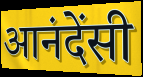
आनंदेंसी